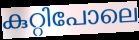
കുറ്റിപോലെ